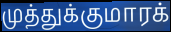
முத்துக்குமாரக்